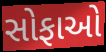
સોફાઓ